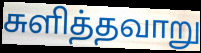
சுளித்தவாறு